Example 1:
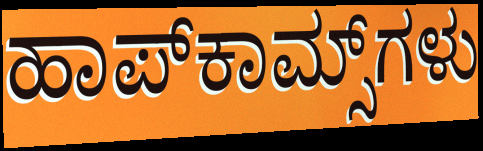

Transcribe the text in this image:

ಹಾಪ್‌ಕಾಮ್ಸ್‌ಗಳು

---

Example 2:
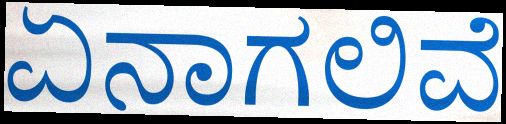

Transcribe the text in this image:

ಏನಾಗಲಿವೆ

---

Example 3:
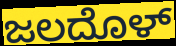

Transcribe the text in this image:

ಜಲದೊಳ್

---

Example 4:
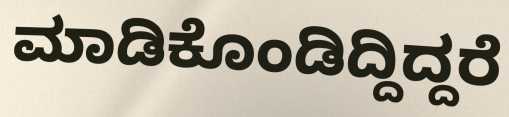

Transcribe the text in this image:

ಮಾಡಿಕೊಂಡಿದ್ದಿದ್ದರೆ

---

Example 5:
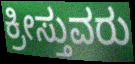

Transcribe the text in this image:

ಕ್ರೀಸ್ತುವರು